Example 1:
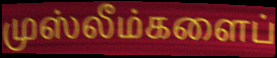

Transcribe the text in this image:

முஸ்லீம்களைப்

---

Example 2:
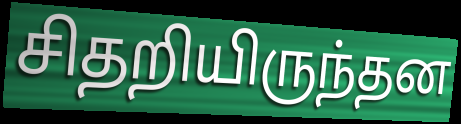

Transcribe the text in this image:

சிதறியிருந்தன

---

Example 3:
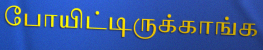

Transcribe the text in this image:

போயிட்டிருக்காங்க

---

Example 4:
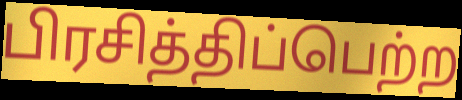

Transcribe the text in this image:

பிரசித்திப்பெற்ற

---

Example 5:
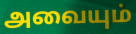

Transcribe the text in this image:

அவையும்